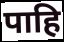
पाहि